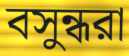
বসুন্ধরা